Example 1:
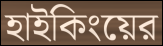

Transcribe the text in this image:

হাইকিংয়ের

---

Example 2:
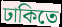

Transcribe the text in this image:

ঢাকিতে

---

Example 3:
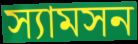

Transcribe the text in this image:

স্যামসন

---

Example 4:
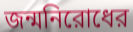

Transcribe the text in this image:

জন্মনিরোধের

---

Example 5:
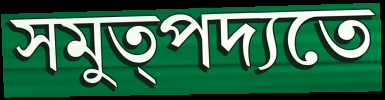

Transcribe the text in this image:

সমুত্পদ্যতে